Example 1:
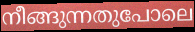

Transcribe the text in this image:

നീങ്ങുന്നതുപോലെ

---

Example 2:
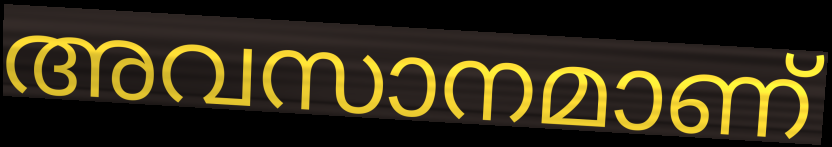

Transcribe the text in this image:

അവസാനമാണ്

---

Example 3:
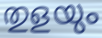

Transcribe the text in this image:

തുളയും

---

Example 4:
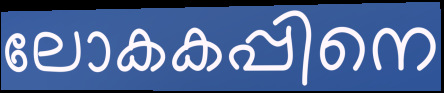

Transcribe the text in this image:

ലോകകപ്പിനെ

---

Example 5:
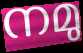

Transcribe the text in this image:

നമു